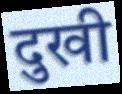
दुखी